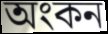
অংকন